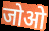
जोओ